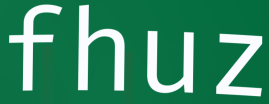
fhuz